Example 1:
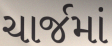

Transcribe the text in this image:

ચાર્જમાં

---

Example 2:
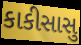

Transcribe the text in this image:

કાકીસાસુ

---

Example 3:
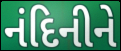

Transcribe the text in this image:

નંદિનીને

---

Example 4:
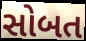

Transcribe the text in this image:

સોબત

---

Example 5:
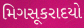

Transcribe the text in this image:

મિગસૂકરાદયો